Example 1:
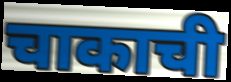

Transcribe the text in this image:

चाकाची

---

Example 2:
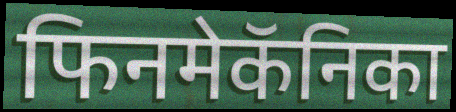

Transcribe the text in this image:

फिनमेकॅनिका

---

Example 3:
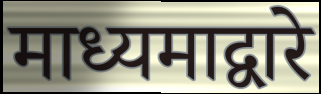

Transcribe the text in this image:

माध्यमाद्वारे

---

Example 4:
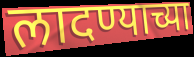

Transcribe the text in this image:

लादण्याच्या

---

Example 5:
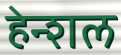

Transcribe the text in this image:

हेन्शल